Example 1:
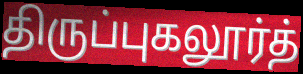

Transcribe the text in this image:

திருப்புகலூர்த்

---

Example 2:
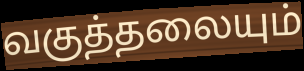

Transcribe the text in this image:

வகுத்தலையும்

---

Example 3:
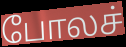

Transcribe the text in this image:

போலச்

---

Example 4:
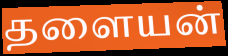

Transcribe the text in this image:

தளையன்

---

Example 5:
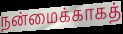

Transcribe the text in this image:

நன்மைக்காகத்